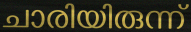
ചാരിയിരുന്ന്